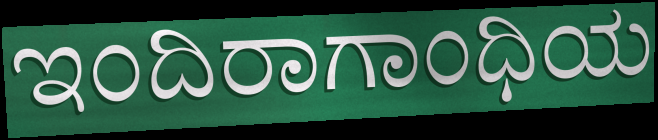
ಇಂದಿರಾಗಾಂಧಿಯ